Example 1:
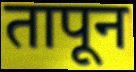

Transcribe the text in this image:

तापून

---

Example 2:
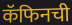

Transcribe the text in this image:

कॅफिनची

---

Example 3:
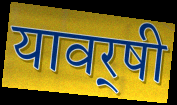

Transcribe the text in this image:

यावर्षी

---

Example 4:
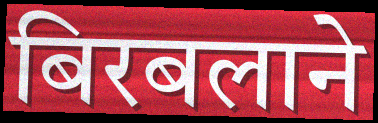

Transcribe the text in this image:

बिरबलाने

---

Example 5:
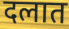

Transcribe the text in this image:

दलात